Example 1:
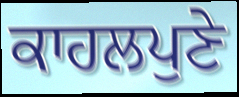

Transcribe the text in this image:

ਕਾਹਲਪੁਣੇ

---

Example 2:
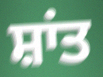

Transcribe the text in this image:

ਸ਼ਾਂਤ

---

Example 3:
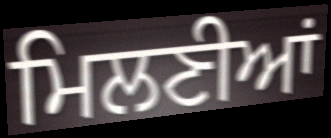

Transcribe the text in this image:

ਮਿਲਣੀਆਂ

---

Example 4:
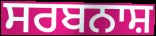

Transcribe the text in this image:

ਸਰਬਨਾਸ਼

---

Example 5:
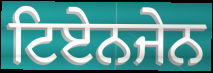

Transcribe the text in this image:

ਟਿਏਨਜੇਨ